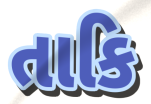
તાકિ